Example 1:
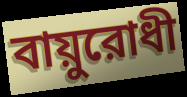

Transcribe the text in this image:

বায়ুরোধী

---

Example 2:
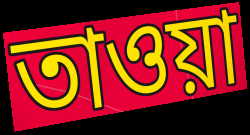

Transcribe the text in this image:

তাওয়া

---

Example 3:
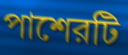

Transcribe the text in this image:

পাশেরটি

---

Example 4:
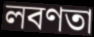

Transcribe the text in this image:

লবণতা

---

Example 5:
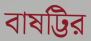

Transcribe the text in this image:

বাষট্টির